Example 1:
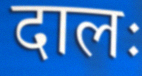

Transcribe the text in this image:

दालः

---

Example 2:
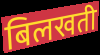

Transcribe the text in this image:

बिलखती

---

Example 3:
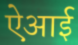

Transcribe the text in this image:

ऐआई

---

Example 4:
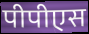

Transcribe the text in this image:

पीपीएस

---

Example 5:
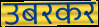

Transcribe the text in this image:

उबरकर